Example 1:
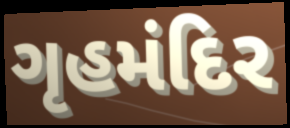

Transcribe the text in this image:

ગૃહમંદિર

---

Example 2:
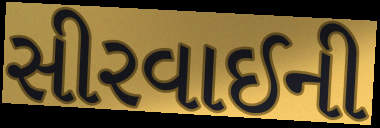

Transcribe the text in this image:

સીરવાઈની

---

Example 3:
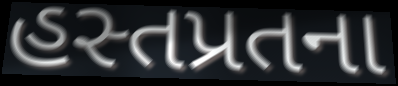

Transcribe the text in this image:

હસ્તપ્રતના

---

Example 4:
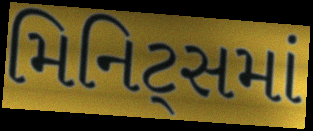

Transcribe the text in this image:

મિનિટ્સમાં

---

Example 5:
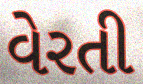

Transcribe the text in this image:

વેરતી